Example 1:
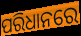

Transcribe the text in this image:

ପରିଧାନରେ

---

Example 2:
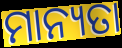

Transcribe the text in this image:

ମାନ୍ୟତା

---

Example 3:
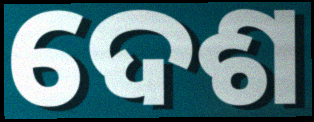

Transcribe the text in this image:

ଦେଶ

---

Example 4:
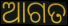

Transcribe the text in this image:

ଆଗତ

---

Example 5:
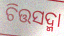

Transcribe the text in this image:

ଚିତ୍ତସଦ୍ମା